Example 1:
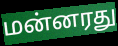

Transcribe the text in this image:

மன்னரது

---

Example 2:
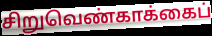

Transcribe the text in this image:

சிறுவெண்காக்கைப்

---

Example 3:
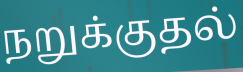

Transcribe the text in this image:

நறுக்குதல்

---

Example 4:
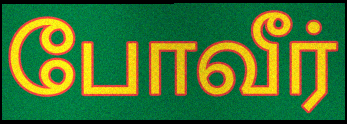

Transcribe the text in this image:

போவீர்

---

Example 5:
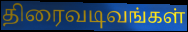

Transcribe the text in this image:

திரைவடிவங்கள்